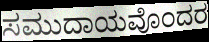
ಸಮುದಾಯವೊಂದರ